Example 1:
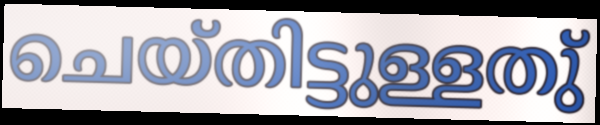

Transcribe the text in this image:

ചെയ്തിട്ടുള്ളതു്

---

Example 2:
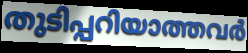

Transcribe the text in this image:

തുടിപ്പറിയാത്തവർ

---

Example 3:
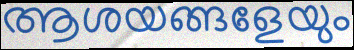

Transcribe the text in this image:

ആശയങ്ങളേയും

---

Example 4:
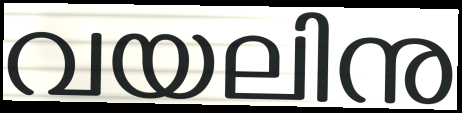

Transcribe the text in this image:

വയലിനു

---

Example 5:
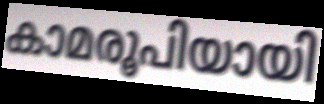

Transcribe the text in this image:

കാമരൂപിയായി